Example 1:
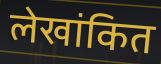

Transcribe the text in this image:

लेखांकित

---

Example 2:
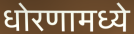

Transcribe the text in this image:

धोरणामध्ये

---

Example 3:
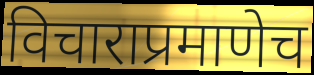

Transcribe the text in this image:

विचाराप्रमाणेच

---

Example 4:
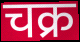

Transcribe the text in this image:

चक्र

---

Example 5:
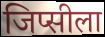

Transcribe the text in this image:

जिप्सीला